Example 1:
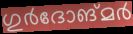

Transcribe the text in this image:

ഗുർദോങ്മർ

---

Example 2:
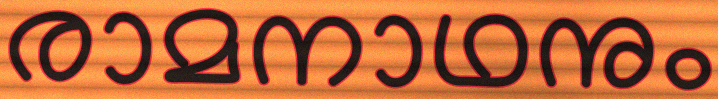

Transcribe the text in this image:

രാമനാഥനും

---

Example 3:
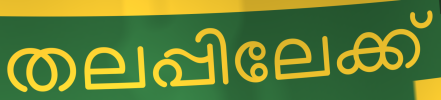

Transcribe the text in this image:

തലപ്പിലേക്ക്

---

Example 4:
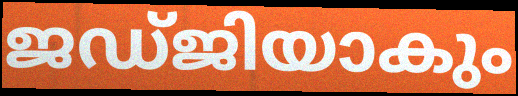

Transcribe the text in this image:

ജഡ്ജിയാകും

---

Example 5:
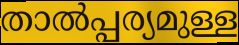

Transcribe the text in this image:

താൽപ്പര്യമുള്ള